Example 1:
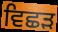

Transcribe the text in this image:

ਵਿਛਡ਼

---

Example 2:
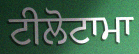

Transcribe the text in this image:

ਟੀਲੋਟਾਮਾ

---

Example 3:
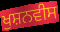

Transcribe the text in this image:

ਖੁਸ਼ਨਵੀਸ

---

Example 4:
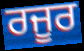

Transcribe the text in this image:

ਰਜੂਰ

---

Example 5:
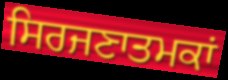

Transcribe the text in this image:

ਸਿਰਜਣਾਤਮਕਾਂ